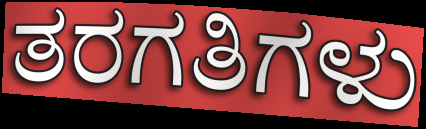
ತರಗತಿಗಳು